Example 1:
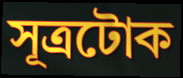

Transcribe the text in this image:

সূত্ৰটোক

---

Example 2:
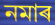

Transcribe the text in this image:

নমাৰ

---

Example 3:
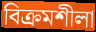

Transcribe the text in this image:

বিক্ৰমশীলা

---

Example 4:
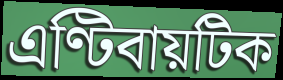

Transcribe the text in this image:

এণ্টিবায়টিক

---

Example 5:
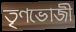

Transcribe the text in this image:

তৃণভোজী